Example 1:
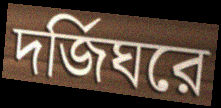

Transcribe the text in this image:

দর্জিঘরে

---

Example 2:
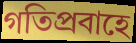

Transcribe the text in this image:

গতিপ্রবাহে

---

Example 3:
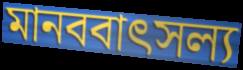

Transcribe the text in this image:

মানববাৎসল্য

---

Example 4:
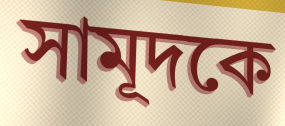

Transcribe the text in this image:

সামূদকে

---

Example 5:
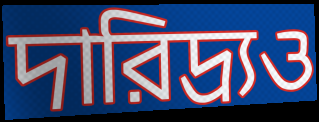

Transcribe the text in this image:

দারিদ্র্যও